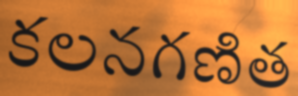
కలనగణిత